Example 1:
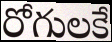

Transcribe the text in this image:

రోగులకే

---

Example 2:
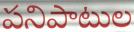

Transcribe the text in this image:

పనిపాటుల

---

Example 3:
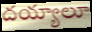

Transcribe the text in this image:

దయ్యాలూ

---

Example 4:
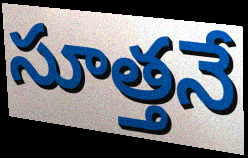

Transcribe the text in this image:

సూత్తనే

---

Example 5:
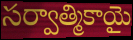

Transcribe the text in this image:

సర్వాత్మికాయై